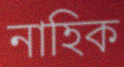
নাহিক